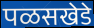
पळसखेडे